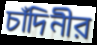
চাঁদিনীর